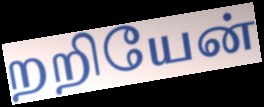
றறியேன்